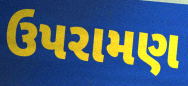
ઉપરામણ